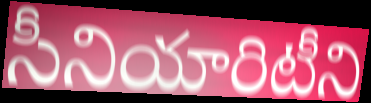
సీనియారిటీని